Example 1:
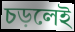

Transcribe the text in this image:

চড়লেই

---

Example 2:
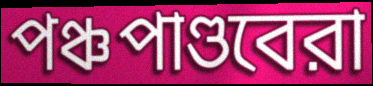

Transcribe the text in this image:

পঞ্চপাণ্ডবেরা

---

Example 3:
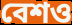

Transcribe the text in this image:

বেশও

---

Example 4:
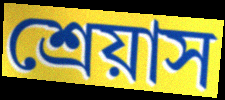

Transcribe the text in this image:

শ্রেয়াস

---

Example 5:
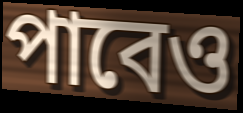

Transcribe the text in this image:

পাবেও